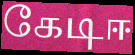
கேடிஈ